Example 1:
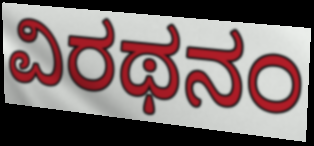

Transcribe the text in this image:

ವಿರಥನಂ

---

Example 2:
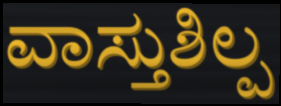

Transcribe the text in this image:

ವಾಸ್ತುಶಿಲ್ಪ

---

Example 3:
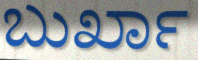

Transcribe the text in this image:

ಬುರ್ಖಾ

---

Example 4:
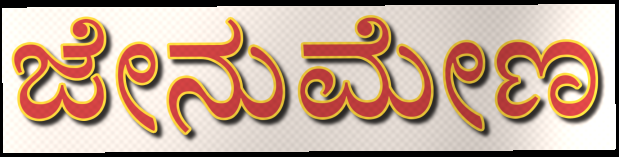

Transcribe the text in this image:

ಜೇನುಮೇಣ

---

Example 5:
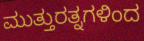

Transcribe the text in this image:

ಮುತ್ತುರತ್ನಗಳಿಂದ